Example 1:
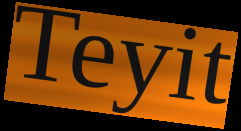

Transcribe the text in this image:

Teyit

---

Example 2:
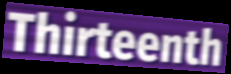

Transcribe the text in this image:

Thirteenth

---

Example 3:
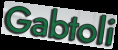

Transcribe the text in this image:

Gabtoli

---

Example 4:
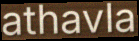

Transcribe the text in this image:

athavla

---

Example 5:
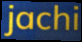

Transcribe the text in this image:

jachi